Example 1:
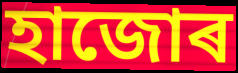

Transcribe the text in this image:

হাজোৰ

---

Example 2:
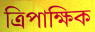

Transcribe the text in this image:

ত্ৰিপাক্ষিক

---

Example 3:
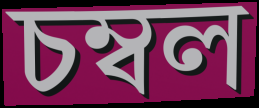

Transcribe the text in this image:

চম্বল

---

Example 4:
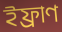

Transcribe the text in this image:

ইফ্ৰাণ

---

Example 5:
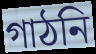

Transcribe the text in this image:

গাঠনি